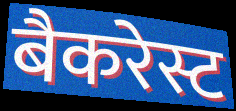
बैकरेस्ट